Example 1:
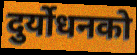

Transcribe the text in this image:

दुर्योधनको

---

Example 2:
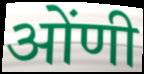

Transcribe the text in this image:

ओंणी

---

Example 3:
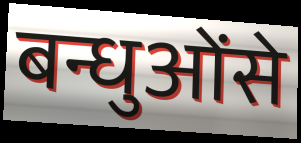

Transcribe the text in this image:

बन्धुओंसे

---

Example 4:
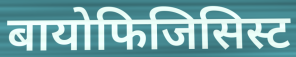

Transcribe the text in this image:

बायोफिजिसिस्ट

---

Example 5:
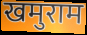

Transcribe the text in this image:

खमुराम